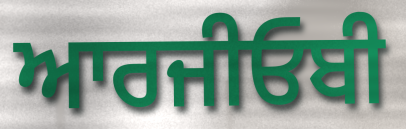
ਆਰਜੀਓਬੀ